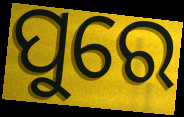
ପୁରେ